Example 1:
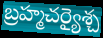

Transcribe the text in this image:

బ్రహ్మచర్యైశ్చ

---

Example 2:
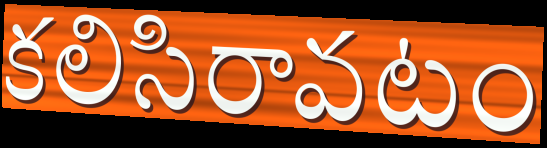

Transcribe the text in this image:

కలిసిరావటం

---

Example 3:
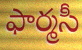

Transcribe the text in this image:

ఫార్మసీ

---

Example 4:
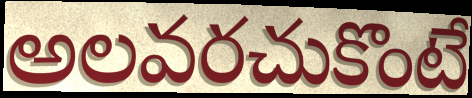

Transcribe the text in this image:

అలవరచుకొంటే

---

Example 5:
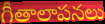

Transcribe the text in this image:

గీతాలాపనలు